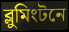
ব্লুমিংটনে